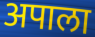
अपाला